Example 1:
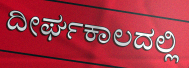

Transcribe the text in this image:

ದೀರ್ಘಕಾಲದಲ್ಲಿ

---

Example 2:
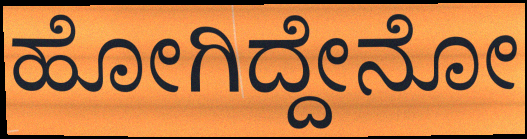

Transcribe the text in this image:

ಹೋಗಿದ್ದೇನೋ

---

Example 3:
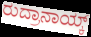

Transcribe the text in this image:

ರುದ್ರಾನಾಯ್ಕ್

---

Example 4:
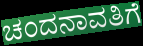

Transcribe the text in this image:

ಚಂದನಾವತಿಗೆ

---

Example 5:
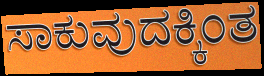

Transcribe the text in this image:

ಸಾಕುವುದಕ್ಕಿಂತ